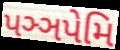
પઞ્ઞપેમિ